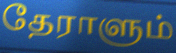
தேராளும்